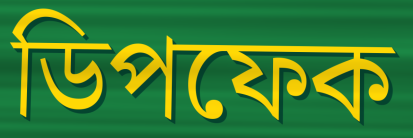
ডিপফেক